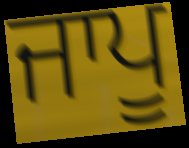
ਜਾਪੂ